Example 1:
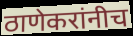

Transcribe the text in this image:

ठाणेकरांनीच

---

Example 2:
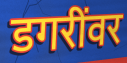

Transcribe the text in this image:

डगरींवर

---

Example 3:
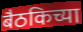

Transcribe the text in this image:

बैठकिच्या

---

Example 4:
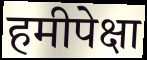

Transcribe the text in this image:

हमीपेक्षा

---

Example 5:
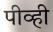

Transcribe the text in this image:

पीव्ही